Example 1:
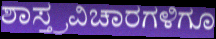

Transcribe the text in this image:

ಶಾಸ್ತ್ರವಿಚಾರಗಳಿಗೂ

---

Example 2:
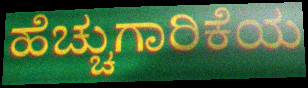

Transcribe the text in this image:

ಹೆಚ್ಚುಗಾರಿಕೆಯ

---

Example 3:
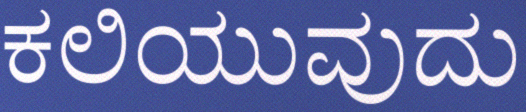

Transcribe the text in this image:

ಕಲಿಯುವುದು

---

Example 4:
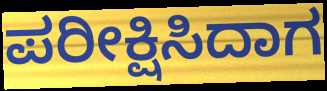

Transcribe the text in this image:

ಪರೀಕ್ಷಿಸಿದಾಗ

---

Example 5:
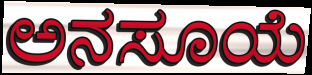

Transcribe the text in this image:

ಅನಸೂಯೆ